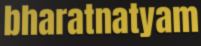
bharatnatyam